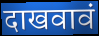
दाखवावं